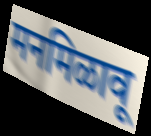
मनमिळावू